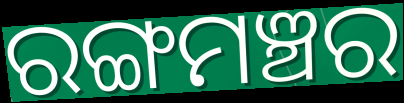
ରଙ୍ଗମଞ୍ଚର